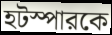
হটস্পারকে